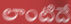
లాంటిదే